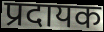
प्रदायक